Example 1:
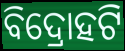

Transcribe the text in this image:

ବିଦ୍ରୋହଟି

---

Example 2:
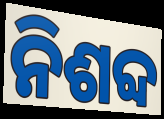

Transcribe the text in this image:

ନିଶବ୍ଦ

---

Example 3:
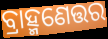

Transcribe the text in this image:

ବ୍ରାହ୍ମଣେତ୍ତର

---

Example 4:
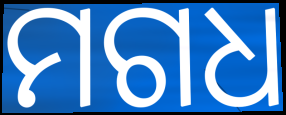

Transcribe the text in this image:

ମଗଧ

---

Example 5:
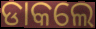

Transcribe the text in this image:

ଡାକଲେ